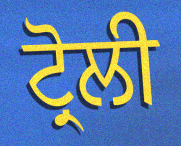
ਟ੍ਰੋਲੀ